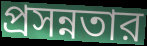
প্রসন্নতার